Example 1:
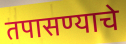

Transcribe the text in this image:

तपासण्याचे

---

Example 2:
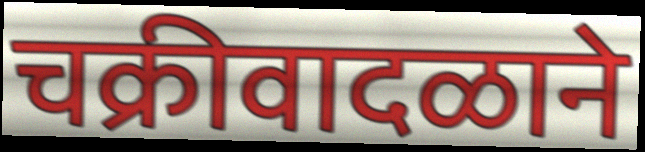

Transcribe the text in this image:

चक्रीवादळाने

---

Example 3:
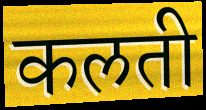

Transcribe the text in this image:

कलती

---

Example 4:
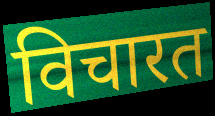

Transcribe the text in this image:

विचारत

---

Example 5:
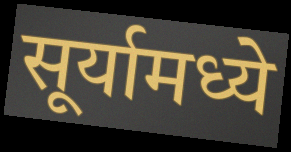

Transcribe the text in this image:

सूर्यामध्ये